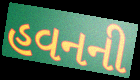
હવનની